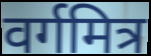
वर्गमित्र